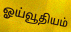
ஓய்வூதியம்